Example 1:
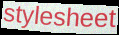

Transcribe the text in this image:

stylesheet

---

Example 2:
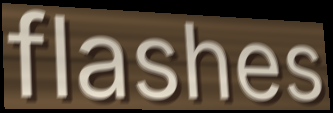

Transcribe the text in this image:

flashes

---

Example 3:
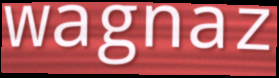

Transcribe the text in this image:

wagnaz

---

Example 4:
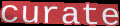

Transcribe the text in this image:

curate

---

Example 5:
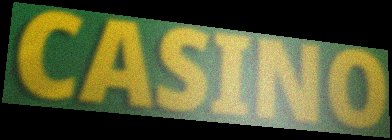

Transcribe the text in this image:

CASINO